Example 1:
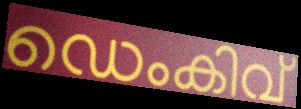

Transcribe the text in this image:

ഡെംകിവ്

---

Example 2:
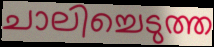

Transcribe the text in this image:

ചാലിച്ചെടുത്ത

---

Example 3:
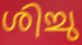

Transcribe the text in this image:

ശിച്ചു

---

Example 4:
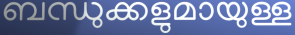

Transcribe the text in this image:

ബന്ധുക്കളുമായുള്ള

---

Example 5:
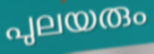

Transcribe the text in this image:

പുലയരും